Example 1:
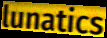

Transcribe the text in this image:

lunatics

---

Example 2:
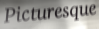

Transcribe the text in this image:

Picturesque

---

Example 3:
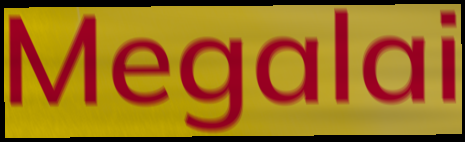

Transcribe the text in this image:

Megalai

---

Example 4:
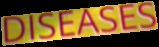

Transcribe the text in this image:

DISEASES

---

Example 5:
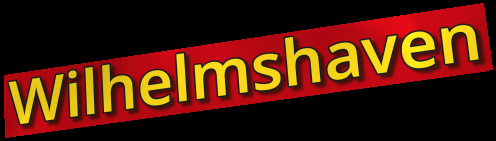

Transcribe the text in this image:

Wilhelmshaven